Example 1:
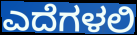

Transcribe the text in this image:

ಎದೆಗಳಲಿ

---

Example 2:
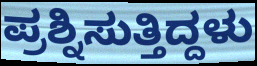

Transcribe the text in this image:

ಪ್ರಶ್ನಿಸುತ್ತಿದ್ದಳು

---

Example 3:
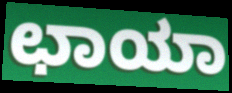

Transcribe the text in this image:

ಛಾಯಾ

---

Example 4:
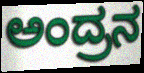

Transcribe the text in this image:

ಅಂದ್ರನ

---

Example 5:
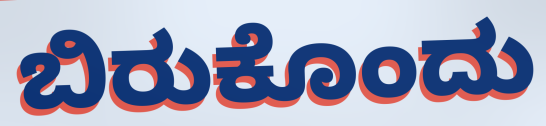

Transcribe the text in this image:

ಬಿರುಕೊಂದು